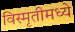
विस्मृतीमध्ये